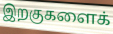
இறகுகளைக்